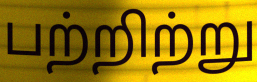
பற்றிற்று